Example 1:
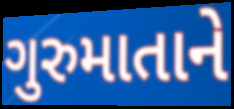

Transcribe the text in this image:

ગુરુમાતાને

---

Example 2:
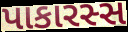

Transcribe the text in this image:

પાકારસ્સ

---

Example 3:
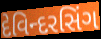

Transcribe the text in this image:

દેવિન્દરસિંગ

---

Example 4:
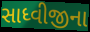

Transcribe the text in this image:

સાધ્વીજીના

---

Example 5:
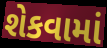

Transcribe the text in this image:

શેકવામાં